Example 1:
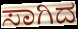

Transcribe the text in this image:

ಸಾಗಿದ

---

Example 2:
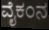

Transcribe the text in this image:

ವೈಕಂನ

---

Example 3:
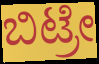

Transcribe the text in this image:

ಬಿಟ್ರೇ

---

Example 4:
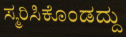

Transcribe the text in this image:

ಸ್ಮರಿಸಿಕೊಂಡದ್ದು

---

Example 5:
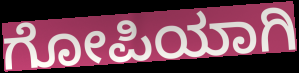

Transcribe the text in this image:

ಗೋಪಿಯಾಗಿ